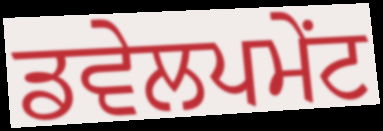
ਡਵੇਲਪਮੇਂਟ